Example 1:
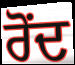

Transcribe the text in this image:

ਰੋਂਦ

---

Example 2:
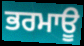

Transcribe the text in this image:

ਭਰਮਾਊ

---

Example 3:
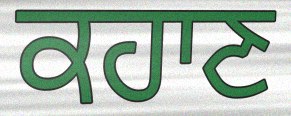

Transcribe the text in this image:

ਕਹਾਣ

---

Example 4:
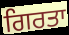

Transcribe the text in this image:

ਗਿਰਤਾ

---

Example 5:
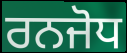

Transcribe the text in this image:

ਰਨਜੋਧ